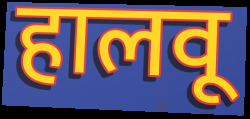
हालवू